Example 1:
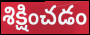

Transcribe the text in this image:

శిక్షించడం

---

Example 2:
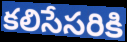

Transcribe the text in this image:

కలిసేసరికి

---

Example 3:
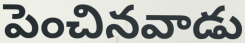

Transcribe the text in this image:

పెంచినవాడు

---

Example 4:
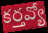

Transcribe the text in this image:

కర్తవ్యో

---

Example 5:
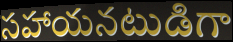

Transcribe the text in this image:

సహాయనటుడిగా